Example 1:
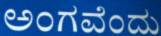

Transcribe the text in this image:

ಅಂಗವೆಂದು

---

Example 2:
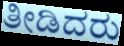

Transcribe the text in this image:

ತೀಡಿದರು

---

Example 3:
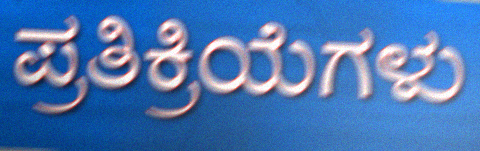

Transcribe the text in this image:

ಪ್ರತಿಕ್ರಿಯೆಗಳು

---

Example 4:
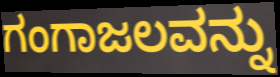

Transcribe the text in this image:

ಗಂಗಾಜಲವನ್ನು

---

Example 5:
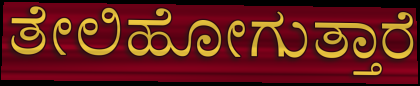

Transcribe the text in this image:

ತೇಲಿಹೋಗುತ್ತಾರೆ